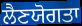
ਲੈਣਯੋਗਤਾ